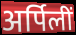
अर्पिलीं